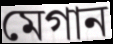
মেগান